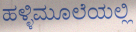
ಹಳ್ಳಿಮೂಲೆಯಲ್ಲಿ